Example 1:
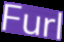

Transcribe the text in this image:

Furl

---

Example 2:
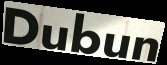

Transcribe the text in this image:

Dubun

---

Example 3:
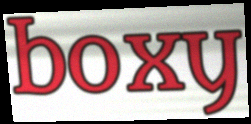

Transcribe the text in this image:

boxy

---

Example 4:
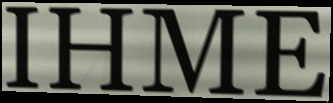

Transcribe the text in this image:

IHME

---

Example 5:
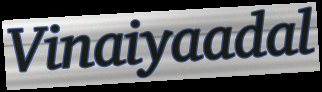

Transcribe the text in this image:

Vinaiyaadal